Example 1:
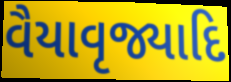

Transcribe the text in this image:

વૈયાવૃજ્યાદિ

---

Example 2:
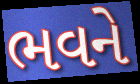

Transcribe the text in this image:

ભવને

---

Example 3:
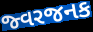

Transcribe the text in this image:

જ્વરજનક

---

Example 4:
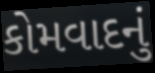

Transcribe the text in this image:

કોમવાદનું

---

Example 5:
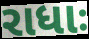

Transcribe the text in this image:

રાધાઃ